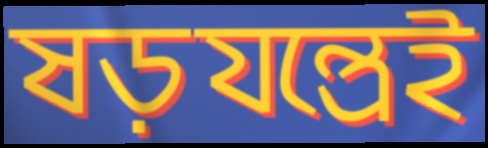
ষড়যন্ত্রেই